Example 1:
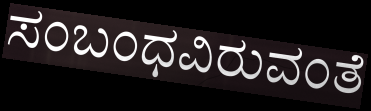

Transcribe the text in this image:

ಸಂಬಂಧವಿರುವಂತೆ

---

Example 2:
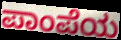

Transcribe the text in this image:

ಪಾಂಪೆಯ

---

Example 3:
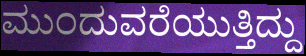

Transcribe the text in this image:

ಮುಂದುವರೆಯುತ್ತಿದ್ದು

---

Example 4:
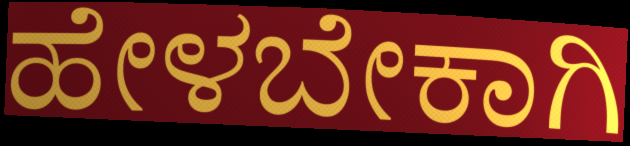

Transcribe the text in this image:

ಹೇಳಬೇಕಾಗಿ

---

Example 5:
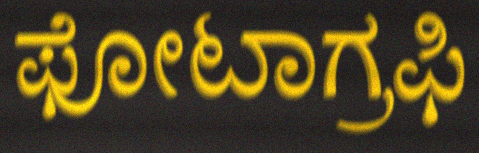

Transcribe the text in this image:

ಫೋಟಾಗ್ರಫಿ